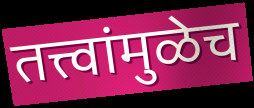
तत्त्वांमुळेच